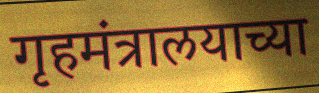
गृहमंत्रालयाच्या